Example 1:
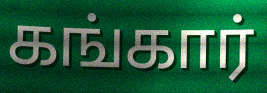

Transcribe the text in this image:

கங்கார்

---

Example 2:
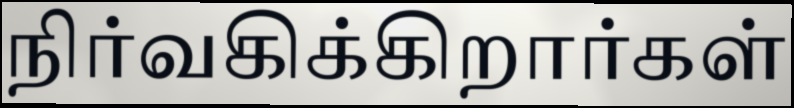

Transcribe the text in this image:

நிர்வகிக்கிறார்கள்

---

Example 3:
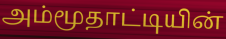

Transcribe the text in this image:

அம்மூதாட்டியின்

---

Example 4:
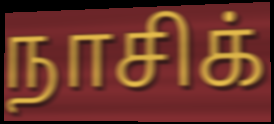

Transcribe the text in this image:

நாசிக்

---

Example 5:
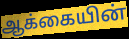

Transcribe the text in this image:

ஆக்கையின்